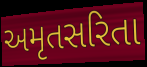
અમૃતસરિતા